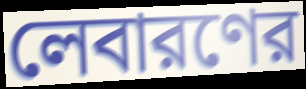
লেবারণের